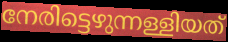
നേരിട്ടെഴുന്നള്ളിയത്